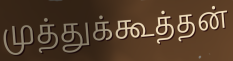
முத்துக்கூத்தன்